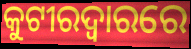
କୁଟୀରଦ୍ୱାରରେ